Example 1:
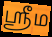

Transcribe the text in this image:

ஶ்ரீம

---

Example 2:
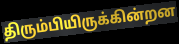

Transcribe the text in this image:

திரும்பியிருக்கின்றன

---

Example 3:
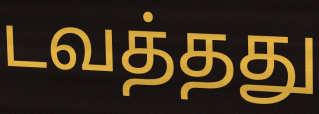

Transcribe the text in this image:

டவத்தது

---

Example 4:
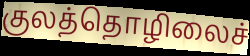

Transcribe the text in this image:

குலத்தொழிலைச்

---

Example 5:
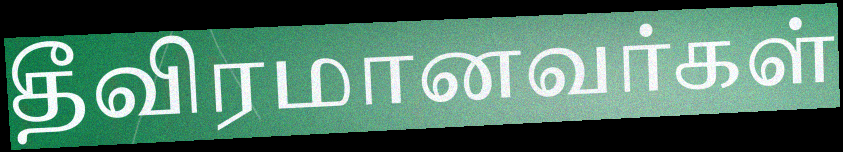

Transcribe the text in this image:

தீவிரமானவர்கள்